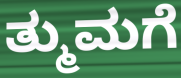
ತ್ಮುಮಗೆ